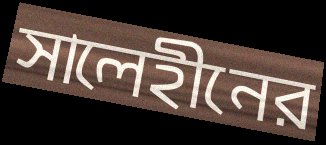
সালেহীনের